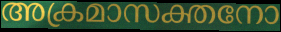
അക്രമാസക്തനോ